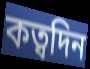
কত্বদিন